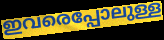
ഇവരെപ്പോലുള്ള